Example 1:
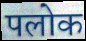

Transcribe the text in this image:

पलोक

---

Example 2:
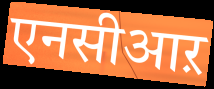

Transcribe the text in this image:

एनसीआऱ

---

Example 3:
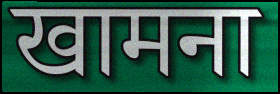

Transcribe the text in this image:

खामना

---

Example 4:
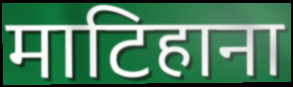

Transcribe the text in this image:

माटिहाना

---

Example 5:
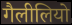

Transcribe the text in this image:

गैलीलियो